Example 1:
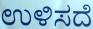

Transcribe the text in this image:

ಉಳಿಸದೆ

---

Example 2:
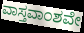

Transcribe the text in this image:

ವಾಸ್ತವಾಂಶವೇ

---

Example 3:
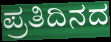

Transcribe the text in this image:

ಪ್ರತಿದಿನದ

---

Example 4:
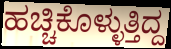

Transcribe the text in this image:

ಹಚ್ಚಿಕೊಳ್ಳುತ್ತಿದ್ದ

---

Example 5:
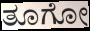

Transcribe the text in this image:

ತೂಗೋ